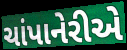
ચાંપાનેરીએ